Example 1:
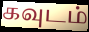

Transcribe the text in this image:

கவுடம்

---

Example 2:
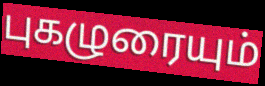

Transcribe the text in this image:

புகழுரையும்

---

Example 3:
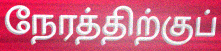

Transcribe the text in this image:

நேரத்திற்குப்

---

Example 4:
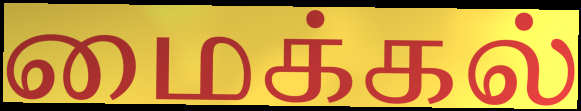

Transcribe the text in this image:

மைக்கல்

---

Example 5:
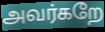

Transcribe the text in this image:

அவர்கறே